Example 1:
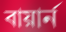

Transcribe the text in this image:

বায়ার্ন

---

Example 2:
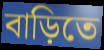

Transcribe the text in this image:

বাড়িতে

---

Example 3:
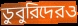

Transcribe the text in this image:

ডুবুরিদেরও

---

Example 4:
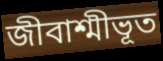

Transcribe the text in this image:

জীবাশ্মীভূত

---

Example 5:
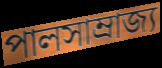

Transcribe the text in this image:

পালসাম্রাজ্য